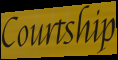
Courtship